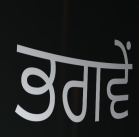
ਭਗਵੇਂ